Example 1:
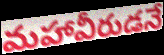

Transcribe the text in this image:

మహావీరుడనే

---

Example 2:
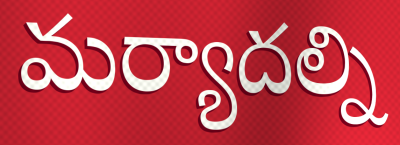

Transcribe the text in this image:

మర్యాదల్ని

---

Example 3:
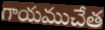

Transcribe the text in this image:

గాయముచేత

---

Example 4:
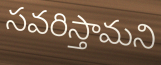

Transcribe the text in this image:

సవరిస్తామని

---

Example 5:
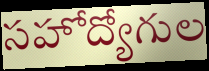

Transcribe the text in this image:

సహోద్యోగుల